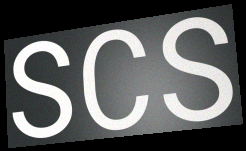
SCS